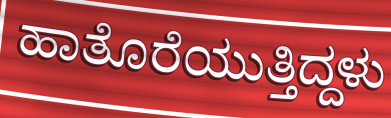
ಹಾತೊರೆಯುತ್ತಿದ್ದಳು